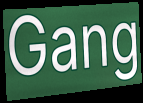
Gang